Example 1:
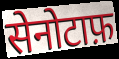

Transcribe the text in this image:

सेनोटाफ़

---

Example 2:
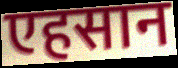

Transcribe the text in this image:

एहसान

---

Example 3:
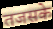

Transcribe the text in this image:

तजसके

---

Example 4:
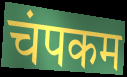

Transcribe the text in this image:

चंपकम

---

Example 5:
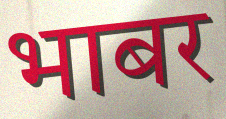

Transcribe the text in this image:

भाबर